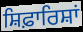
ਸ਼ਿਫ਼ਾਰਿਸ਼ਾਂ